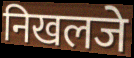
निखलजे